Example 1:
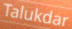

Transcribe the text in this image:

Talukdar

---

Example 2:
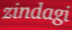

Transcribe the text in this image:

zindagi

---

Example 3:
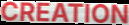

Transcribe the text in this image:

CREATION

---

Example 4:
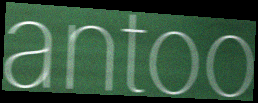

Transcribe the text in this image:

antoo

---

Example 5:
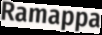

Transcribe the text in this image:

Ramappa